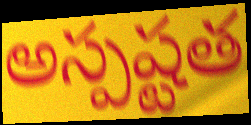
అస్పష్టత